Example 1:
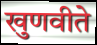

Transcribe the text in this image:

खुणवीते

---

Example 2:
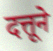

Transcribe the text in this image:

दत्तूने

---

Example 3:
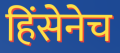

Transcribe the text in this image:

हिंसेनेच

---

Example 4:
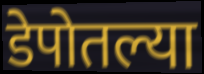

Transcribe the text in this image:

डेपोतल्या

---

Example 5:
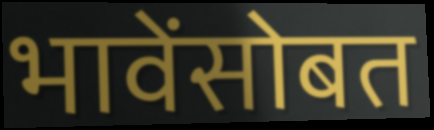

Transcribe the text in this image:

भावेंसोबत